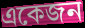
একেজন